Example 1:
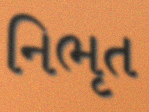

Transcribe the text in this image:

નિભૃત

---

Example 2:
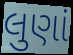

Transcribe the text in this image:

લુણાં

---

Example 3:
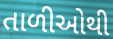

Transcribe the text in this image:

તાળીઓથી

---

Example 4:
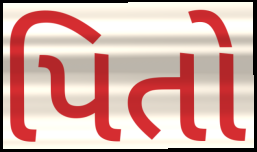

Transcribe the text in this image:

પિતો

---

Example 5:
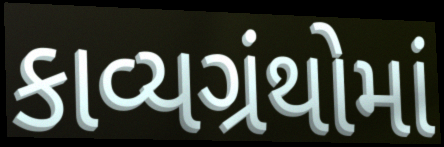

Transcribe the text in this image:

કાવ્યગ્રંથોમાં